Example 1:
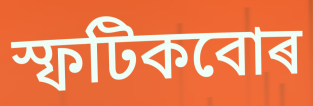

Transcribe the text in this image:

স্ফটিকবোৰ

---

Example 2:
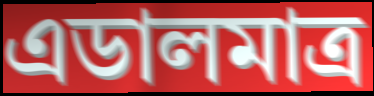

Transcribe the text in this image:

এডালমাত্ৰ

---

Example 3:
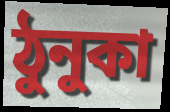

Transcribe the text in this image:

ঠুনুকা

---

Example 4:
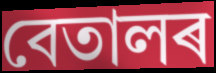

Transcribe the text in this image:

বেতালৰ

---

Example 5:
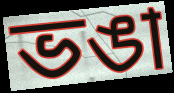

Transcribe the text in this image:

ভঙা